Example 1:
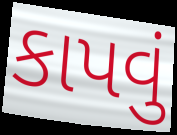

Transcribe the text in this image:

કાપવું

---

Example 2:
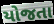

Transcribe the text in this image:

યોજતા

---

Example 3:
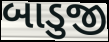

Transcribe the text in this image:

બાડુજી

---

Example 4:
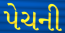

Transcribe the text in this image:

પેચની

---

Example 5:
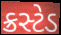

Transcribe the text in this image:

ક્રસ્ટેડ